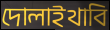
দোলাইথাবি